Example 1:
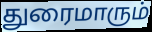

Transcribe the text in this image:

துரைமாரும்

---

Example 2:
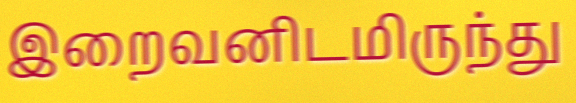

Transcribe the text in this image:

இறைவனிடமிருந்து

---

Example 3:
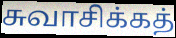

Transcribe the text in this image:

சுவாசிக்கத்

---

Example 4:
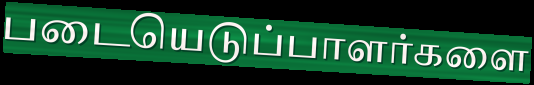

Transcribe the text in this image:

படையெடுப்பாளர்களை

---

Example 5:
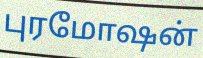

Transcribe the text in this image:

புரமோஷன்